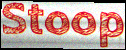
Stoop